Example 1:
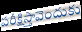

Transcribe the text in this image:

పరీక్షిస్తావెందుకు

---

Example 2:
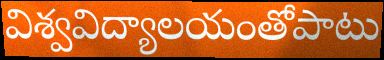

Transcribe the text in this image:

విశ్వవిద్యాలయంతోపాటు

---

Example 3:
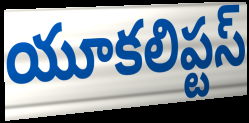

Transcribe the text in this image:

యూకలిప్టస్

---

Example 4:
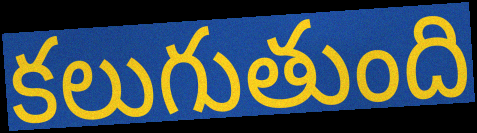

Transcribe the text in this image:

కలుగుతుంది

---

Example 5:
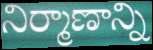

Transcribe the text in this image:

నిర్మాణాన్ని